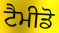
ਟੈਮੀਡੋ